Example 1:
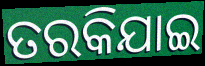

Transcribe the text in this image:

ତରକିଯାଇ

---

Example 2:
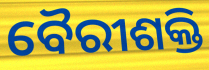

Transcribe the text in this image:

ବୈରୀଶକ୍ତି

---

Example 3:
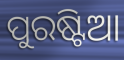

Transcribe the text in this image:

ପୁରଷ୍ଟିଆ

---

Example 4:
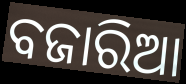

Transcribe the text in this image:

ବଜାରିଆ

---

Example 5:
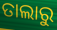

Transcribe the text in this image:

ତାଲାରୁ